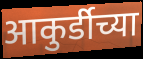
आकुर्डीच्या